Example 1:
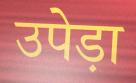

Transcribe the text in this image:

उपेड़ा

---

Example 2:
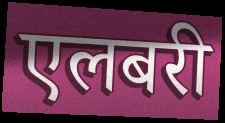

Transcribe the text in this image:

एलबरी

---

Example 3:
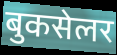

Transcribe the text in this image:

बुकसेलर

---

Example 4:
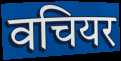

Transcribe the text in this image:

वचियर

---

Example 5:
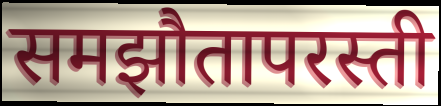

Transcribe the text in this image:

समझौतापरस्ती